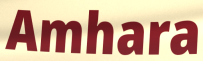
Amhara